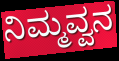
ನಿಮ್ಮವ್ವನ